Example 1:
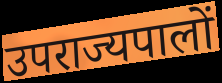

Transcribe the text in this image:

उपराज्यपालों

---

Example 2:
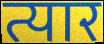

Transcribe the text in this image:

त्यार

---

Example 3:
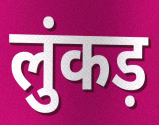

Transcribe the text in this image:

लुंकड़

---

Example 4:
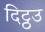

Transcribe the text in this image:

दिट्ठउ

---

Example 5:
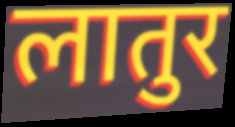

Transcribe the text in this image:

लातुर